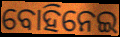
ବୋହିନେଇ